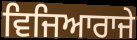
ਵਿਜਿਆਰਾਜੇ